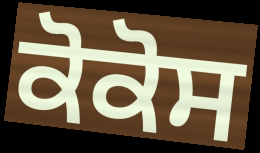
ਕੋਕੋਸ